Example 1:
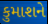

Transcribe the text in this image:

કુમાશને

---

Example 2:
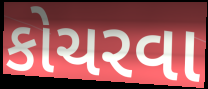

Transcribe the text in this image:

કોચરવા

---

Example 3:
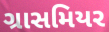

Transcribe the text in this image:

ગ્રાસમિયર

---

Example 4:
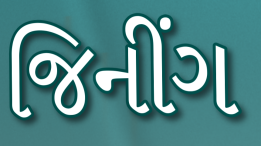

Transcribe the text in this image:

જિનીંગ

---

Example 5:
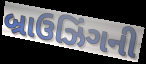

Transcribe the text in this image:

બ્રાઉઝિંગની